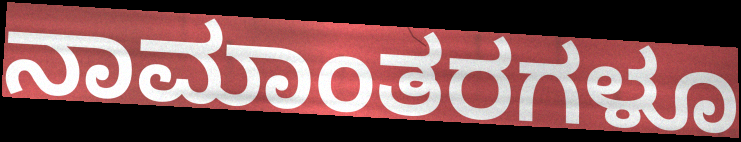
ನಾಮಾಂತರಗಳೂ